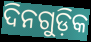
ଦିନଗୁଡ଼ିକ